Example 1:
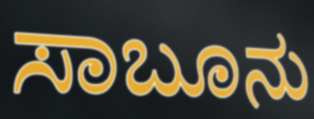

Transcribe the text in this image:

ಸಾಬೂನು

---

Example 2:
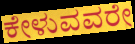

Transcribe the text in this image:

ಕೇಳುವವರೇ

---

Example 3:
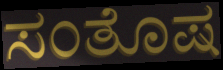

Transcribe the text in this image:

ಸಂತೊಷ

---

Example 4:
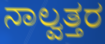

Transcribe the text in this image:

ನಾಲ್ವತ್ತರ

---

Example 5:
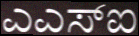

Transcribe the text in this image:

ಎಎಸ್ಐ